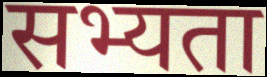
सभ्यता